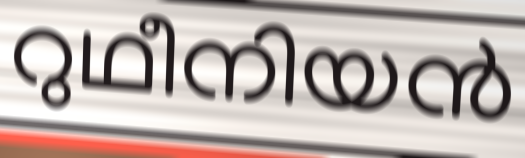
റുഥീനിയൻ